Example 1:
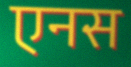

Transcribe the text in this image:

एनस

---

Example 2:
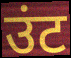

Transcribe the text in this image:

उंट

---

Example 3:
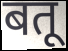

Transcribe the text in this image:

बतू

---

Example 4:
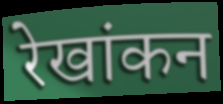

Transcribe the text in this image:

रेखांकन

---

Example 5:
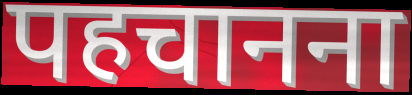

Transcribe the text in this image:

पहचानना